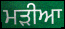
ਮੜੀਆ